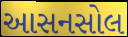
આસનસોલ